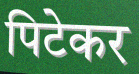
पिटेकर